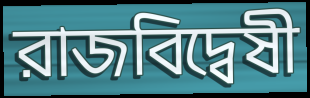
রাজবিদ্বেষী